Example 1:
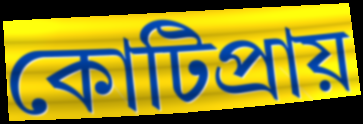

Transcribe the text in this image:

কোটিপ্ৰায়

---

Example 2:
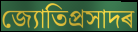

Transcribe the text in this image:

জ্যোতিপ্ৰসাদৰ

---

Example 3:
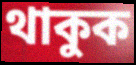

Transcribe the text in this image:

থাকুক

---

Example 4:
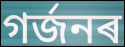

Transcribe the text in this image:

গৰ্জনৰ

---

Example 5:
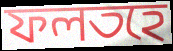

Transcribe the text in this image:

ফলতহে